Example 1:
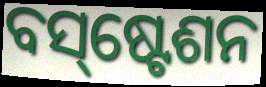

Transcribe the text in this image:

ବସ୍‌ଷ୍ଟେଶନ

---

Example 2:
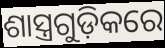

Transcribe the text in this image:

ଶାସ୍ତ୍ରଗୁଡ଼ିକରେ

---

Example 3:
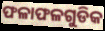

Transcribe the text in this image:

ଫଳାଫଳଗୁଡିକ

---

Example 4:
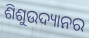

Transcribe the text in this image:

ଶିଶୁଉଦ୍ୟାନର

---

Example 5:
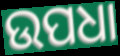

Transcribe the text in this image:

ଉପଧା